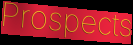
Prospects